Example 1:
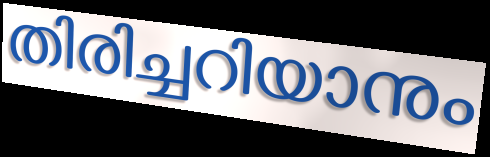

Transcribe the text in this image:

തിരിച്ചറിയാനും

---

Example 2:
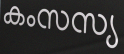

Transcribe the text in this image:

കംസസ്യ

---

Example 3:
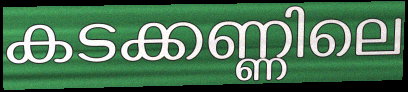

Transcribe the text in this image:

കടക്കണ്ണിലെ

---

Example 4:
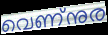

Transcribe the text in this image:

വെണ്നുര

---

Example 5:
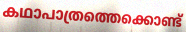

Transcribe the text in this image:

കഥാപാത്രത്തെക്കൊണ്ട്